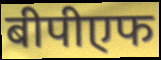
बीपीएफ